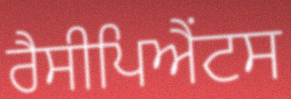
ਰੈਸੀਪਿਐਂਟਸ